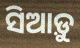
ସିଆଡ଼ୁ